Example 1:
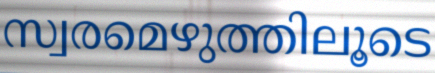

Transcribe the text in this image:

സ്വരമെഴുത്തിലൂടെ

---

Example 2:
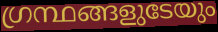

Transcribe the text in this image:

ഗ്രന്ഥങ്ങളുടേയും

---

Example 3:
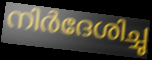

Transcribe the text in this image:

നിർദേശിച്ചു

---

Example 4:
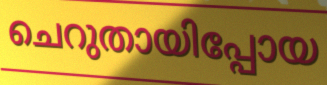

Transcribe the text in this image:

ചെറുതായിപ്പോയ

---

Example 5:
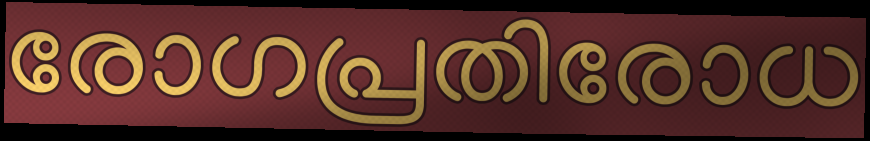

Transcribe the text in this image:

രോഗപ്രതിരോധ